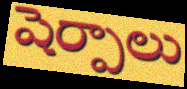
షెర్పాలు